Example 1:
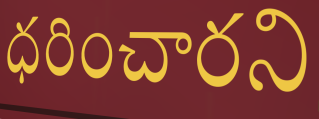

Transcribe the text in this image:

ధరించారని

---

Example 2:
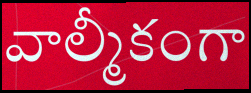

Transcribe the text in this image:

వాల్మీకంగా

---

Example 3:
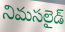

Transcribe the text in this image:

నిమసలైడ్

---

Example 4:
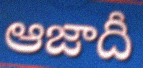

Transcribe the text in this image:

ఆజాదీ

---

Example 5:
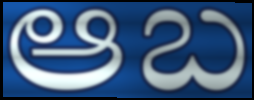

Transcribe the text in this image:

ఆబ